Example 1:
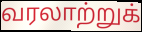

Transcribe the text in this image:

வரலாற்றுக்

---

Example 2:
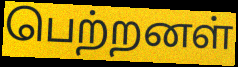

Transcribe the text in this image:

பெற்றனள்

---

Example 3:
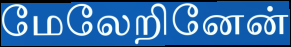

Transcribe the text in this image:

மேலேறினேன்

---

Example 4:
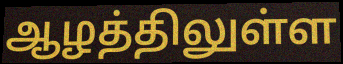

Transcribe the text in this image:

ஆழத்திலுள்ள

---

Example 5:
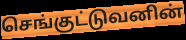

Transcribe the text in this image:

செங்குட்டுவனின்